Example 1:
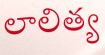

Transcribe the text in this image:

లాలిత్య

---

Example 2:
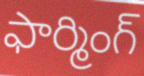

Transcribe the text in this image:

ఫార్మింగ్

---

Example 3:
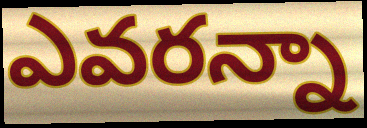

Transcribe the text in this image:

ఎవరన్నా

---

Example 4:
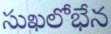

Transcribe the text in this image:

సుఖలోభేన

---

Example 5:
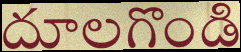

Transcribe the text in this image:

దూలగొండి